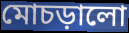
মোচড়ালো